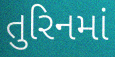
તુરિનમાં